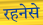
रहनेसे